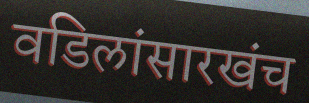
वडिलांसारखंच